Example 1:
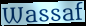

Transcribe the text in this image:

Wassaf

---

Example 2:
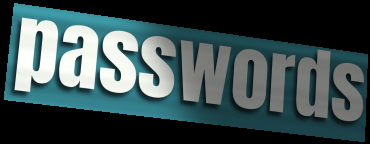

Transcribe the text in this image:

passwords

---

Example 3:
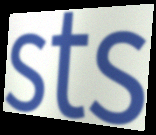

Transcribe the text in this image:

sts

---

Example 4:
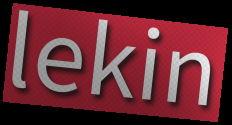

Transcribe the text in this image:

lekin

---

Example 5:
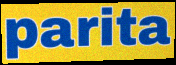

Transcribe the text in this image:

parita